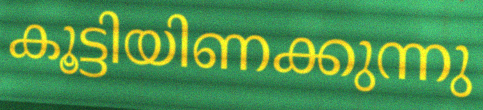
കൂട്ടിയിണക്കുന്നു